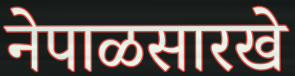
नेपाळसारखे